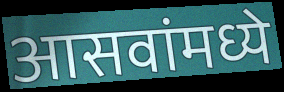
आसवांमध्ये